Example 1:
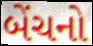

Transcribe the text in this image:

બેંચનો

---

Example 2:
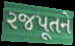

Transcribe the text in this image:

રજપૂતને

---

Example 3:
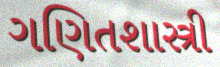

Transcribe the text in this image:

ગણિતશાસ્ત્રી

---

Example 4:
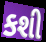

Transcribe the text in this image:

કશી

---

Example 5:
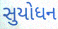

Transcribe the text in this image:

સુયોધન